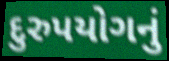
દુરુપયોગનું